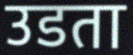
उडता